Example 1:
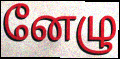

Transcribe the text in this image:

னேழு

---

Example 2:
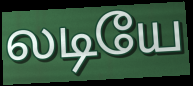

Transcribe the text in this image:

லடியே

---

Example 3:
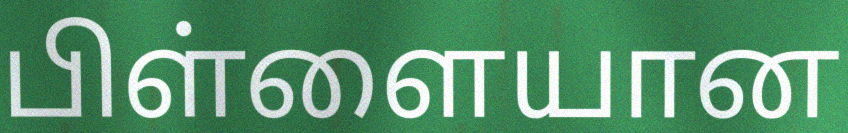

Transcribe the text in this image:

பிள்ளையான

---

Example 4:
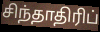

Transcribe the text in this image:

சிந்தாதிரிப்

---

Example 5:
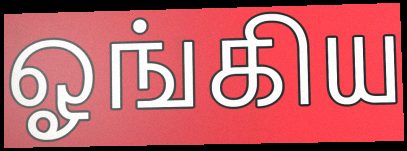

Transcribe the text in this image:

ஓங்கிய